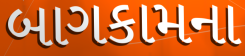
બાગકામના